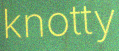
knotty